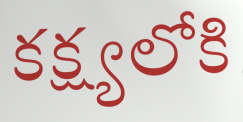
కక్ష్యలోకి